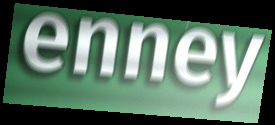
enney